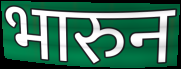
भारुन